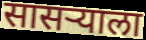
सासऱ्याला